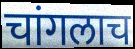
चांगलाच